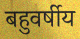
बहुवर्षीय